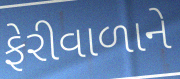
ફેરીવાળાને